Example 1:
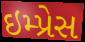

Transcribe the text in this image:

ઇમ્પ્રેસ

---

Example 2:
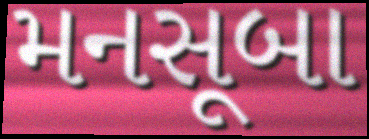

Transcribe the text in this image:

મનસૂબા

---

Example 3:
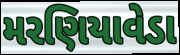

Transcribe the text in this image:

મરણિયાવેડા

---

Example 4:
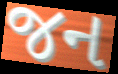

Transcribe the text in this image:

જન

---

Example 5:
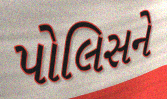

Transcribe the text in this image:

પોલિસને